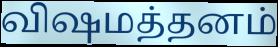
விஷமத்தனம்